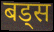
बड्स